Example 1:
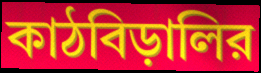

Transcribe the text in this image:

কাঠবিড়ালির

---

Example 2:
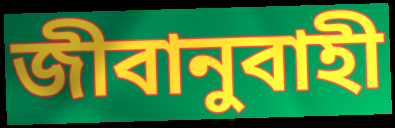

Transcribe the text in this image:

জীবানুবাহী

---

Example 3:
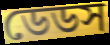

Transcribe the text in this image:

ডেডস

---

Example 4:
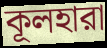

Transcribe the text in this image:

কূলহারা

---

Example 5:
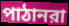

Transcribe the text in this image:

পাঠানরা